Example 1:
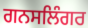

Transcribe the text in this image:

ਗਨਸਲਿੰਗਰ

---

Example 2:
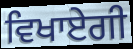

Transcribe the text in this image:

ਵਿਖਾਏਗੀ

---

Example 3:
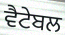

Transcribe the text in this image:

ਵੈਟੇਬਲ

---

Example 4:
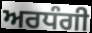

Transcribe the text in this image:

ਅਰਧੰਗੀ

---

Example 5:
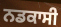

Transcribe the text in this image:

ਨਡਕਾਸੀ